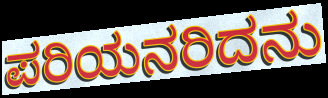
ಪರಿಯನರಿದನು